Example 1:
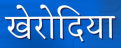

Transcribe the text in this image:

खेरोदिया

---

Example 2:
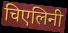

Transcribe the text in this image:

चिएलिनी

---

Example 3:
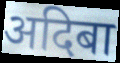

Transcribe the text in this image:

अदिबा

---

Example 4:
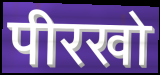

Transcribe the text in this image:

पीरखो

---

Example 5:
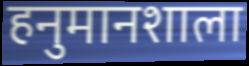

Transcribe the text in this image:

हनुमानशाला